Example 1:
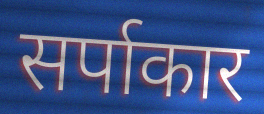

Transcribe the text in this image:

सर्पाकार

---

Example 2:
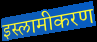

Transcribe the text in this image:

इस्लामीकरण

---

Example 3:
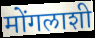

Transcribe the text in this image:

मोंगलाशी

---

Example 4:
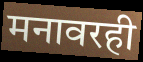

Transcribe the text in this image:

मनावरही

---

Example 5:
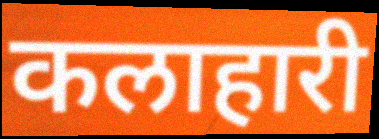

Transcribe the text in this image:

कलाहारी